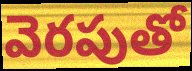
వెరపుతో